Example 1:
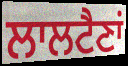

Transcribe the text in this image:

ਲਾਲਟੈਣਾਂ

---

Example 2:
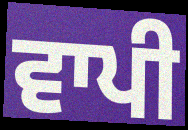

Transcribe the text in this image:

ਵਾਪੀ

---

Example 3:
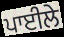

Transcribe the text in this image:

ਪਾਈਲੇ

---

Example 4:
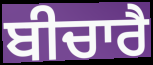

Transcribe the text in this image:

ਬੀਚਾਰੈ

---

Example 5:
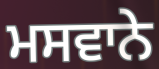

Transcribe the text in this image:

ਮਸਵਾਨੇ